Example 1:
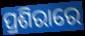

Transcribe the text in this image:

ପ୍ରଶିରାରେ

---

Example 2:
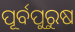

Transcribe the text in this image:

ପୂର୍ବପୁରୁଷ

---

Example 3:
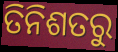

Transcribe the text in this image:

ତିନିଶତରୁ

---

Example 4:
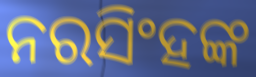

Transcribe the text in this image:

ନରସିଂହଙ୍କ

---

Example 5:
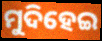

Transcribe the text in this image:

ମୁଦିହେଇ